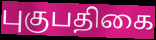
புகுபதிகை